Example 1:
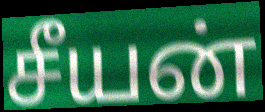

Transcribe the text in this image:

சீயன்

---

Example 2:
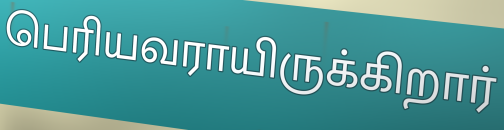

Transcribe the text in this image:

பெரியவராயிருக்கிறார்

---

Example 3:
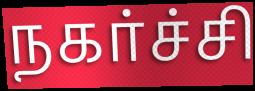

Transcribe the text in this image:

நகர்ச்சி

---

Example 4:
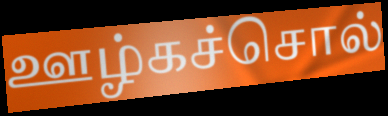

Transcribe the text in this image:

ஊழ்கச்சொல்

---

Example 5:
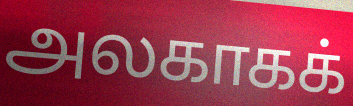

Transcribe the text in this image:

அலகாகக்